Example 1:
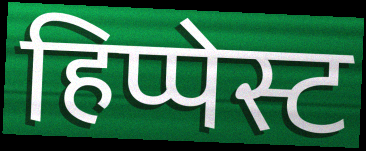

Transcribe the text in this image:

हिप्पेस्ट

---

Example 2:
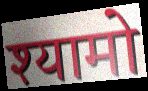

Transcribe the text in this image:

श्यामो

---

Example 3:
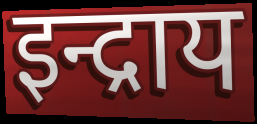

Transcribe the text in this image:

इन्द्राय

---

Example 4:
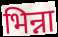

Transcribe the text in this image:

भिन्ना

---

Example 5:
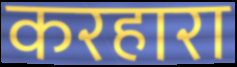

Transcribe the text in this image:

करहारा